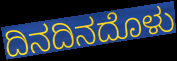
ದಿನದಿನದೊಳು